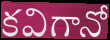
కవిగానో